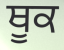
ਥੂਕ